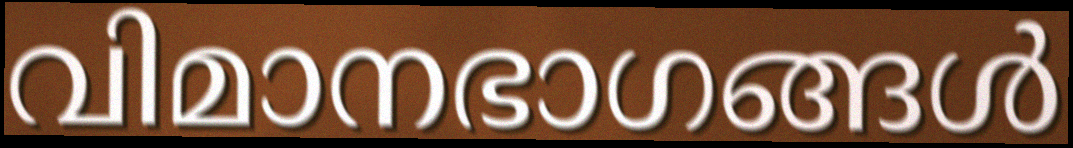
വിമാനഭാഗങ്ങൾ